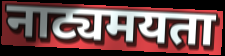
नाट्यमयता